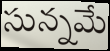
సున్నమే